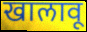
खालावू